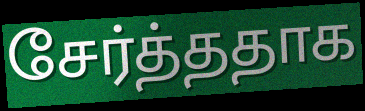
சேர்த்ததாக